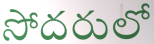
సోదరులో